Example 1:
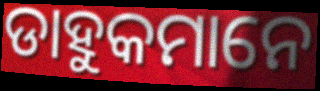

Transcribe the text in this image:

ଡାହୁକମାନେ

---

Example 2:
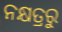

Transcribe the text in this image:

ନକ୍ଷତ୍ରରୁ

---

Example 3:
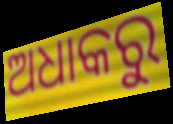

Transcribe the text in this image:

ଅଧାକରୁ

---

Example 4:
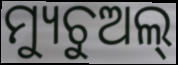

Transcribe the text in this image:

ମ୍ୟୁଚୁଅଲ୍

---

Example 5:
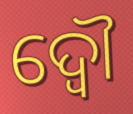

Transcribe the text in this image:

ଦ୍ଵୌ